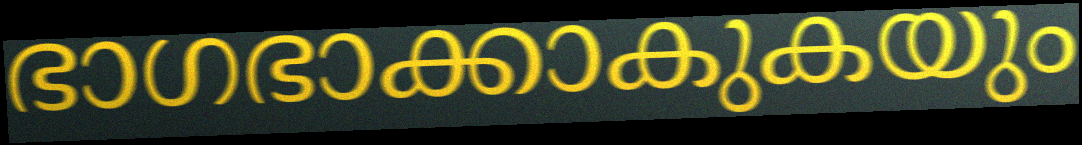
ഭാഗഭാക്കാകുകയും